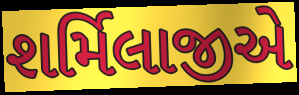
શર્મિલાજીએ